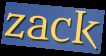
zack